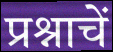
प्रश्नाचें